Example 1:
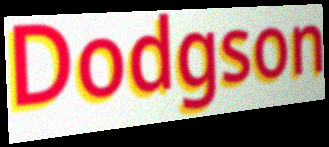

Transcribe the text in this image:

Dodgson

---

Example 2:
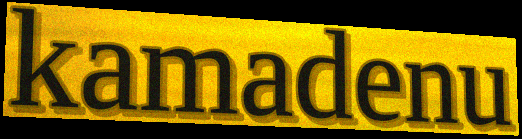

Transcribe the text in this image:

kamadenu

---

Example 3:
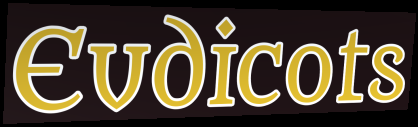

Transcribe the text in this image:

Eudicots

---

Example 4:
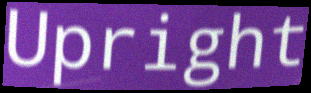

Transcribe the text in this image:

Upright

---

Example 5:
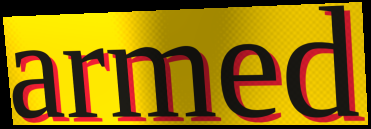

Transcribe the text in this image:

armed